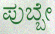
ಪುಬ್ಬೇ